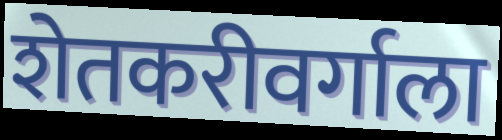
शेतकरीवर्गाला